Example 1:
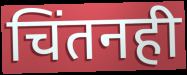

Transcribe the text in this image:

चिंतनही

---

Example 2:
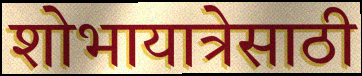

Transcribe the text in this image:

शोभायात्रेसाठी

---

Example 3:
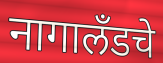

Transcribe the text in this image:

नागालँडचे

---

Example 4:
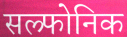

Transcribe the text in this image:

सल्फोनिक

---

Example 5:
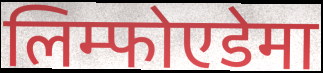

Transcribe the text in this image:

लिम्फोएडेमा